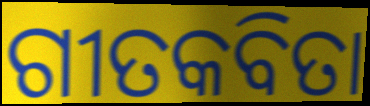
ଗୀତକବିତା